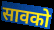
सावको